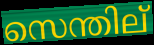
സെന്തില്